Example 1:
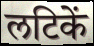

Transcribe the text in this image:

लटिकें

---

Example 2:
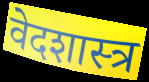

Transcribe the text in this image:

वेदशास्त्र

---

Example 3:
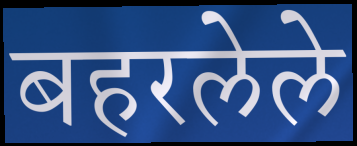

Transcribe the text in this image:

बहरलेले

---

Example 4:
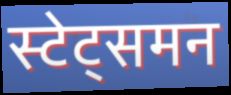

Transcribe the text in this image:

स्टेट्समन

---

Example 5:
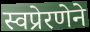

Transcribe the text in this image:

स्वप्रेरणेने